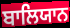
ਬਾਲਿਯਾਨ